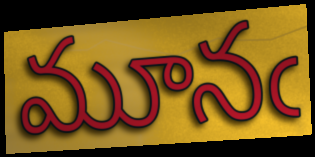
మూనఁ